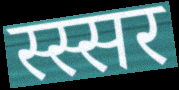
स्स्सर